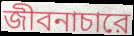
জীবনাচারে